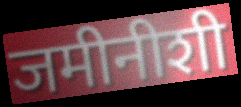
जमीनीशी